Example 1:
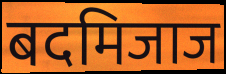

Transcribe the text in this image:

बदमिजाज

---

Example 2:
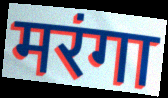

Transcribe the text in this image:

मरंगा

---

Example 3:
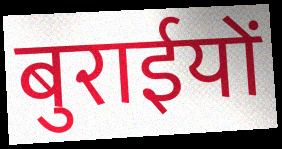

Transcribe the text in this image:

बुराईयों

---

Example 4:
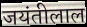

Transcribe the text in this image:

जयंतीलाल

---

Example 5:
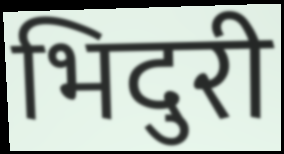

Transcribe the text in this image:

भिदुरी